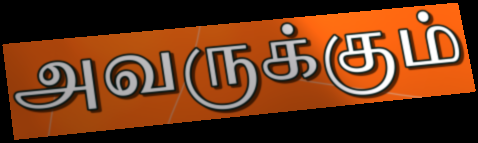
அவருக்கும்